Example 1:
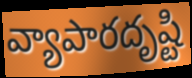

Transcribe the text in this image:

వ్యాపారదృష్టి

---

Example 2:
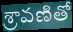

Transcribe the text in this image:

శ్రావణితో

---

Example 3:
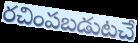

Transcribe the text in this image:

రచింపబడుటచే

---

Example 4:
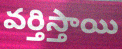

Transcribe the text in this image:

వర్తిస్తాయి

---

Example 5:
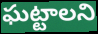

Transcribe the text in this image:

ఘట్టాలని